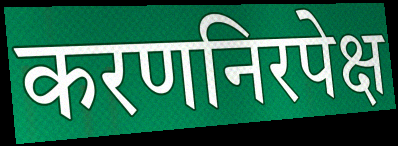
करणनिरपेक्ष